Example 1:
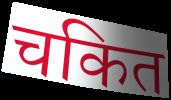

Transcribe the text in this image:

चकित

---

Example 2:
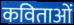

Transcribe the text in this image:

कविताओं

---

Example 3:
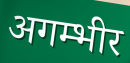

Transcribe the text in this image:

अगम्भीर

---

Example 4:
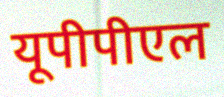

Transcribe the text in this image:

यूपीपीएल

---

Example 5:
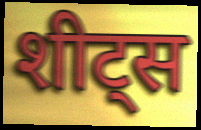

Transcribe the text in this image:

शीट्स